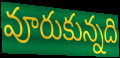
వూరుకున్నది